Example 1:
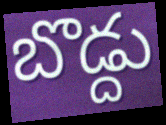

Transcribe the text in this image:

బొడ్దు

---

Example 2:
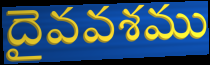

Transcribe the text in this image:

దైవవశము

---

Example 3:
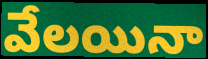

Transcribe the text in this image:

వేలయినా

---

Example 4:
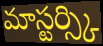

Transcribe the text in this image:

మాస్టర్స్కి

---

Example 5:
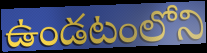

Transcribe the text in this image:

ఉండటంలోని